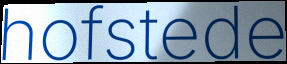
hofstede